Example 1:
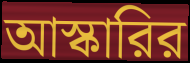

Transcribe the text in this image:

আস্কারির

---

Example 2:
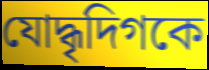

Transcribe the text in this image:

যোদ্ধৃদিগকে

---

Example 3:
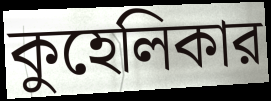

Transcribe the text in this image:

কুহেলিকার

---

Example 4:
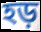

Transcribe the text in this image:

হড়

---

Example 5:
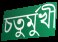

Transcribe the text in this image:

চতুর্মুখী